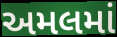
અમલમાં